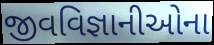
જીવવિજ્ઞાનીઓના